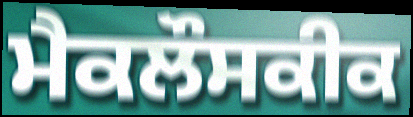
ਮੈਕਲੌਸਕੀਕ